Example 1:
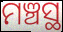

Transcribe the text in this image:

ମଞ୍ଚସ୍ଥ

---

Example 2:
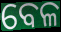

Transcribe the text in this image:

ବେଳ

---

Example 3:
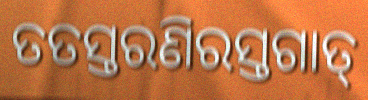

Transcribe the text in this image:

ତତସ୍ତରଣିରସ୍ତଗାତ୍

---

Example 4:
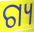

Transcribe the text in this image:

ଗ୍ଯ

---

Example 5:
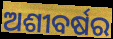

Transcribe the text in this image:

ଅଶୀବର୍ଷର